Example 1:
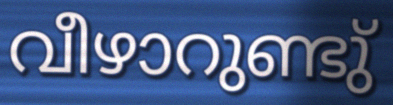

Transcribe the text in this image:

വീഴാറുണ്ടു്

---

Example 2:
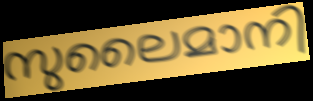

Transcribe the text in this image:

സുലൈമാനി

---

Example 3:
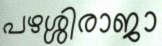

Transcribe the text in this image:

പഴശ്ശിരാജാ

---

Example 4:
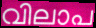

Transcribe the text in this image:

വിലാപ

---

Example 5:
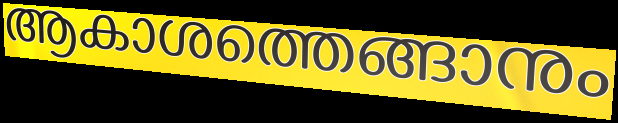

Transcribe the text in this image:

ആകാശത്തെങ്ങാനും